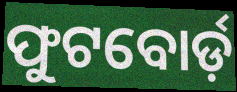
ଫୁଟବୋର୍ଡ଼